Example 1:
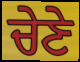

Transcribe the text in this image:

ਚੇਣੇ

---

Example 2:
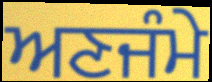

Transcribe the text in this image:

ਅਣਜੰਮੇ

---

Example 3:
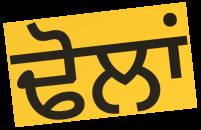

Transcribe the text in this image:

ਢੋਲਾਂ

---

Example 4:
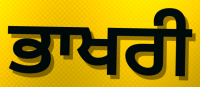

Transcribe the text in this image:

ਭਾਖਰੀ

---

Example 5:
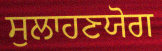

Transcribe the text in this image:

ਸੁਲਾਹਣਯੋਗ